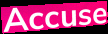
Accuse